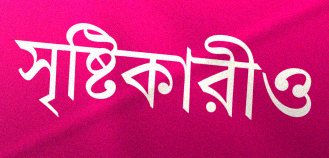
সৃষ্টিকারীও